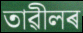
তাৱীলৰ